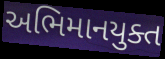
અભિમાનયુક્ત